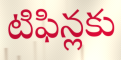
టిఫిన్లకు